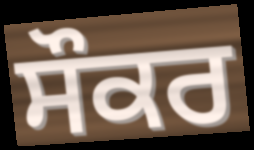
ਸੌਕਰ